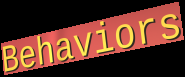
Behaviors